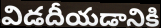
విడదీయడానికి